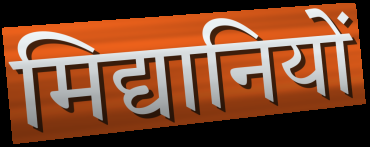
मिद्यानियों